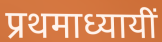
प्रथमाध्यायीं